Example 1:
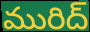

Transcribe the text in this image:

మురిద్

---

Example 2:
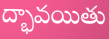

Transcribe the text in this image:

ద్భావయితు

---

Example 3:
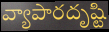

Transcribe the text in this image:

వ్యాపారదృష్టి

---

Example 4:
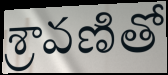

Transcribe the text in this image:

శ్రావణితో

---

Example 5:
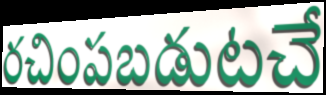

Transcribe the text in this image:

రచింపబడుటచే